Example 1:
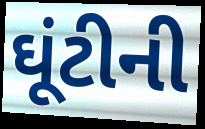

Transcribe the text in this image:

ઘૂંટીની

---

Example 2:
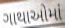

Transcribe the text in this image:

ગાથાઓમાં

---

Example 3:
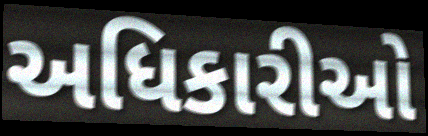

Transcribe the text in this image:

અધિકારીઓ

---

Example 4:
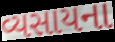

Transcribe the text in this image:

વ્યસાયના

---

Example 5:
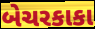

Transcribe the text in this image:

બેચરકાકા